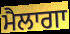
ਮੈਲਾਗਾ